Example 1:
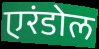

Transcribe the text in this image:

एरंडोल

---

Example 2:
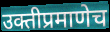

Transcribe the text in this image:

उक्तीप्रमाणेच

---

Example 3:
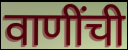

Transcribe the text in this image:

वाणींची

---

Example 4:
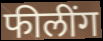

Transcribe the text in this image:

फीलींग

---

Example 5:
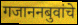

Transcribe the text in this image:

गजाननबुवांचे